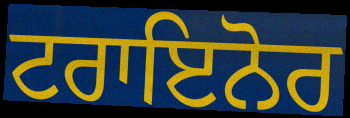
ਟਰਾਇਨੋਰ